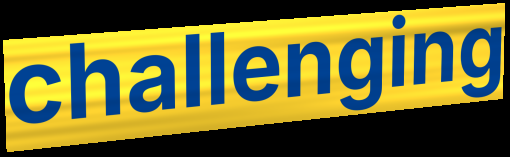
challenging